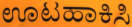
ಊಟಹಾಕಿಸಿ